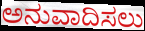
ಅನುವಾದಿಸಲು